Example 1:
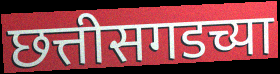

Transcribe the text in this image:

छत्तीसगडच्या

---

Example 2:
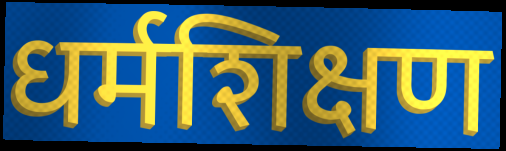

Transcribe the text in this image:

धर्मशिक्षण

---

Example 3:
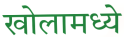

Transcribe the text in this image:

खोलामध्ये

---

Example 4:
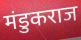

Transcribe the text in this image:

मंडुकराज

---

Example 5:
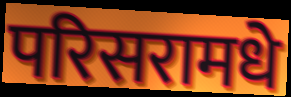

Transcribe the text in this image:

परिसरामधे